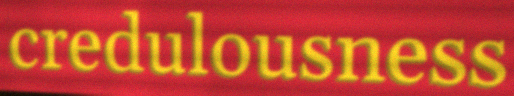
credulousness